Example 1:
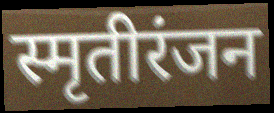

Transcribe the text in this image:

स्मृतीरंजन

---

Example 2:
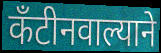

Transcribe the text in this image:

कँटीनवाल्याने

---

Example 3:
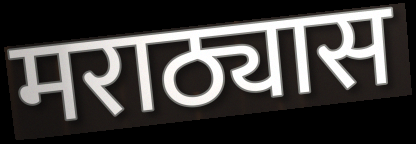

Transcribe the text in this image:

मराठ्यास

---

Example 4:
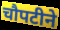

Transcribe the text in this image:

चौपटीने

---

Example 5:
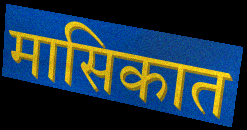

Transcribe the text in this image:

मासिकात